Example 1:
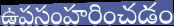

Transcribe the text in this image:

ఉపసంహరించడం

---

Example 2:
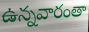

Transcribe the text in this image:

ఉన్నవారంతా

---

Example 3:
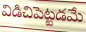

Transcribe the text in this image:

విడిచిపెట్టడమే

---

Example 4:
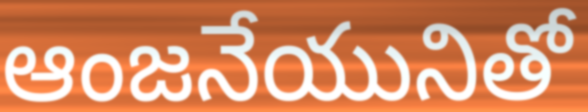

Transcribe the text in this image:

ఆంజనేయునితో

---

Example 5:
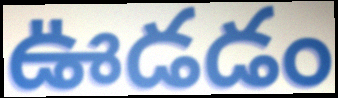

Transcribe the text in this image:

ఊడడం